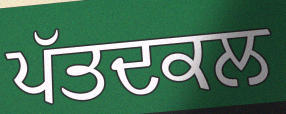
ਪੱਤਦਕਲ